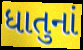
ધાતુનાં